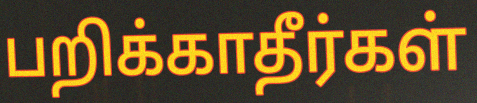
பறிக்காதீர்கள்